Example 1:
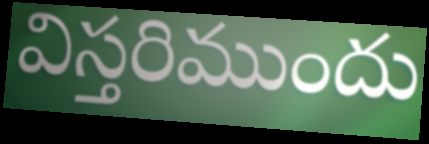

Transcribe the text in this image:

విస్తరిముందు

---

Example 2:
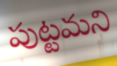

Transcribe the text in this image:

పుట్టమని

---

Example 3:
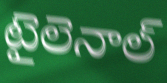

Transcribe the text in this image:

టైలెనాల్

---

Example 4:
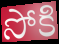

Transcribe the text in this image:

సోకి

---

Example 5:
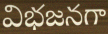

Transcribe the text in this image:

విభజనగా